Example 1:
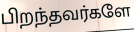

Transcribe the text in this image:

பிறந்தவர்களே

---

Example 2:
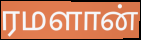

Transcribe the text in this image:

ரமளான்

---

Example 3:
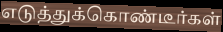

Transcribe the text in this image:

எடுத்துக்கொண்டீர்கள்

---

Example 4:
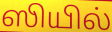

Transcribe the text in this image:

ஸியில்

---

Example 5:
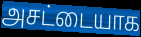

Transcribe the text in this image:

அசட்டையாக